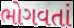
ભોગવતાં